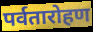
पर्वतारोहण